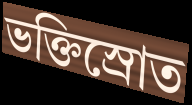
ভক্তিস্রোত